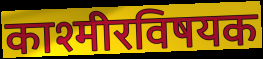
काश्मीरविषयक